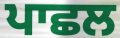
ਪਾਛਲ